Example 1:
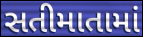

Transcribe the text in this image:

સતીમાતામાં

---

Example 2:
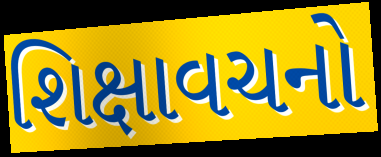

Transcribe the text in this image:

શિક્ષાવચનો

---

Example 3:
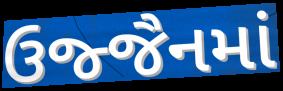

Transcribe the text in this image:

ઉજ્જૈનમાં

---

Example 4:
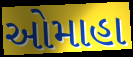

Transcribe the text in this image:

ઓમાહા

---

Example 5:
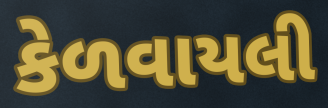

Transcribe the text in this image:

કેળવાયલી